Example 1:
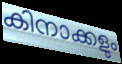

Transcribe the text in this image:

കിനാക്കളും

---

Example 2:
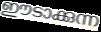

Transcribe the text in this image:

ഈടാക്കുന്ന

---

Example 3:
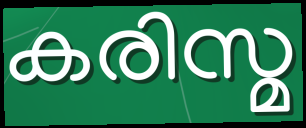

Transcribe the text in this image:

കരിസ്മ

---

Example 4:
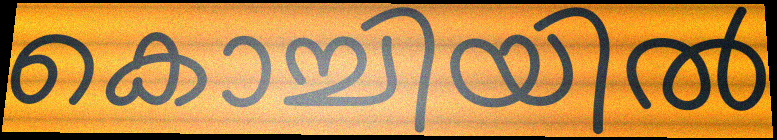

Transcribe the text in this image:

കൊച്ചിയിൽ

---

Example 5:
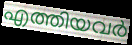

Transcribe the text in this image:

എത്തിയവർ